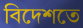
বিদেশতে